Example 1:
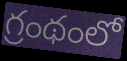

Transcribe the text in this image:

గ్రంథంలో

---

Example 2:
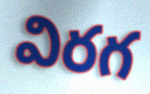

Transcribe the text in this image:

విరగ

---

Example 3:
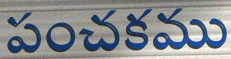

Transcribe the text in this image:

పంచకము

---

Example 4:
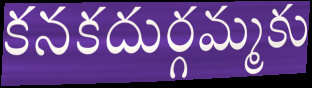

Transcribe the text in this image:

కనకదుర్గమ్మకు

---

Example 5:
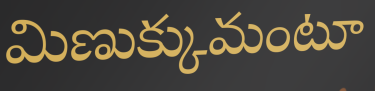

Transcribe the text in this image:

మిణుక్కుమంటూ